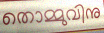
തൊമ്മുവിനു